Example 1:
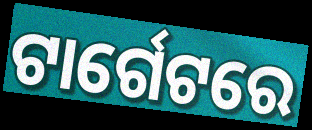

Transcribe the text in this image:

ଟାର୍ଗେଟରେ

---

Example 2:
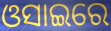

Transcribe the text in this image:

ଓସାଇରେ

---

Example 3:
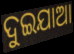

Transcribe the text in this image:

ଦୁଇଯାଆ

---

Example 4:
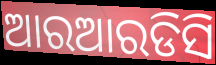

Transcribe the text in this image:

ଆରଆରଡିସି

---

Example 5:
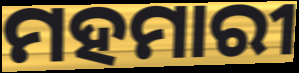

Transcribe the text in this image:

ମହମାରୀ